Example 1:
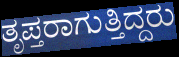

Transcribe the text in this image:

ತೃಪ್ತರಾಗುತ್ತಿದ್ದರು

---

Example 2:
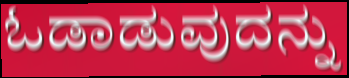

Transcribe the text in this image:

ಓಡಾಡುವುದನ್ನು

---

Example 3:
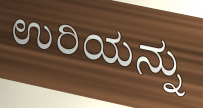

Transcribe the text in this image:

ಉರಿಯನ್ನು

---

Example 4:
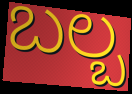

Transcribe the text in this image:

ಬಲ್ಬ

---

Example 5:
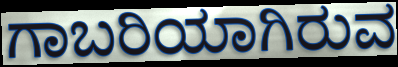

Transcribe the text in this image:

ಗಾಬರಿಯಾಗಿರುವ